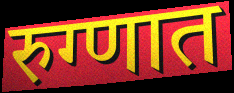
रुग्णात